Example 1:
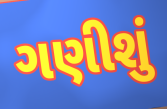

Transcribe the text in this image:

ગણીશું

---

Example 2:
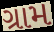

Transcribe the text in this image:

ગ્રામ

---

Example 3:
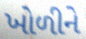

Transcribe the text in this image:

ખોળીને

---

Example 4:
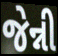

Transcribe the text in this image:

જેન્ની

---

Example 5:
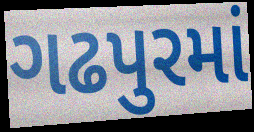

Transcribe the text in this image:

ગઢપુરમાં